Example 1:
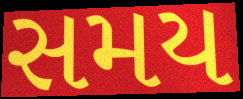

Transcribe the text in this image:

સમય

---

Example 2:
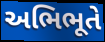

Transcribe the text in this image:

અભિભૂતે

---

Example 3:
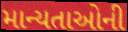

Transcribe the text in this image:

માન્યતાઓની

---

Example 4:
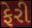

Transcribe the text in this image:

ફેરી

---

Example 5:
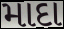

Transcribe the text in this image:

માદા